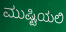
ಮುಷ್ಟಿಯಲಿ